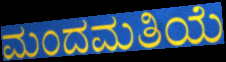
ಮಂದಮತಿಯೆ